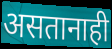
असतानाही